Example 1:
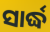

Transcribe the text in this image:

ସାର୍ଦ୍ଧ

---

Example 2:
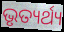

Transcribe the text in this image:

ଭୃତ୍ୟର୍ଥ୍ୟ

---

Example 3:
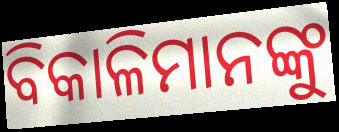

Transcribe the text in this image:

ବିକାଳିମାନଙ୍କୁ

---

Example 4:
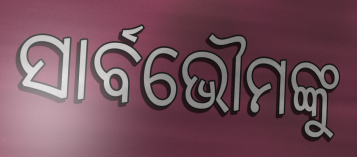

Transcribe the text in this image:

ସାର୍ବଭୌମଙ୍କୁ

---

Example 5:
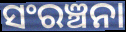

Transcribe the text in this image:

ସଂରଞ୍ଚନା